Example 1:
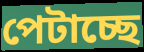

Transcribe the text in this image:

পেটাচ্ছে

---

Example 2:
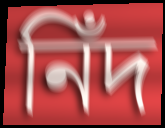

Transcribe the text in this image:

নিঁদ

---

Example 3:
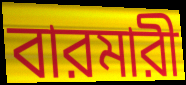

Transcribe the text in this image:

বারমারী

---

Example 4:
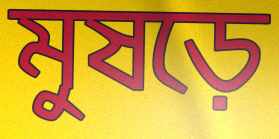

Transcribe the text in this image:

মুষড়ে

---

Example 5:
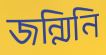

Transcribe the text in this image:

জন্মিনি